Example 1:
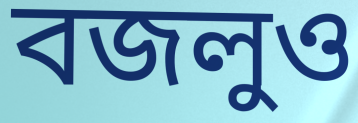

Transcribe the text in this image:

বজলুও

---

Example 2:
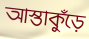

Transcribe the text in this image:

আস্তাকুঁড়ে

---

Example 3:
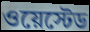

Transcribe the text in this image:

ওয়েস্টেড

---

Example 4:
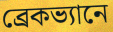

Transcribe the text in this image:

ব্রেকভ্যানে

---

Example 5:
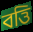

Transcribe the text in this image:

বত্তি